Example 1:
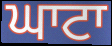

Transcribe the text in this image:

ਘਾਟਾ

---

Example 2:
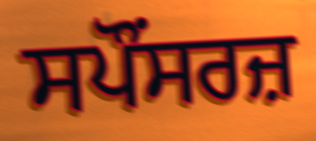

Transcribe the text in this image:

ਸਪੌਂਸਰਜ਼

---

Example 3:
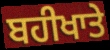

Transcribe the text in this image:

ਬਹੀਖਾਤੇ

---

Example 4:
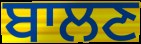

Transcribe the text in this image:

ਬਾਲਣ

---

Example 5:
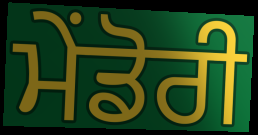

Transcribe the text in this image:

ਮੇਂਡੋਰੀ